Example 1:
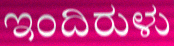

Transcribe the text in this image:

ಇಂದಿರುಳು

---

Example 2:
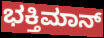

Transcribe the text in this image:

ಭಕ್ತಿಮಾನ್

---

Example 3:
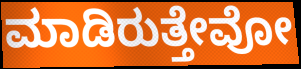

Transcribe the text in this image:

ಮಾಡಿರುತ್ತೇವೋ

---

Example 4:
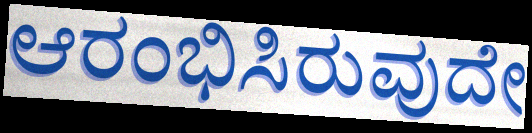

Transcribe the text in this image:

ಆರಂಭಿಸಿರುವುದೇ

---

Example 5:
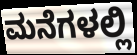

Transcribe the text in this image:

ಮನೆಗಳಲ್ಲಿ